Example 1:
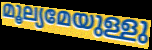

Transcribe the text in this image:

മൂല്യമേയുള്ളു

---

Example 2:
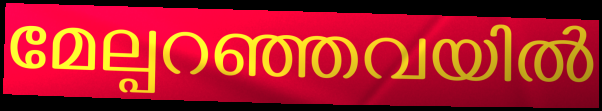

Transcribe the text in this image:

മേല്പറഞ്ഞവയിൽ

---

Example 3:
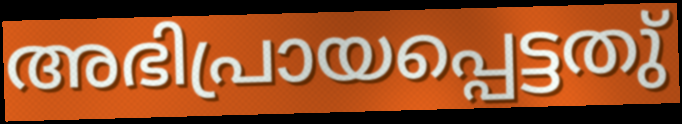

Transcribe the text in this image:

അഭിപ്രായപ്പെട്ടതു്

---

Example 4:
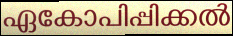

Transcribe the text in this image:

ഏകോപിപ്പിക്കൽ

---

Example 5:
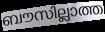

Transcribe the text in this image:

ബൗസില്ലാത്ത